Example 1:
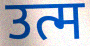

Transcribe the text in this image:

उत्म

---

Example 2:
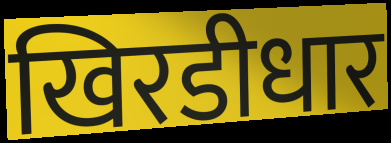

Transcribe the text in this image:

खिरडीधार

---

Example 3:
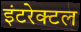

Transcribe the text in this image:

इंटरेक्टल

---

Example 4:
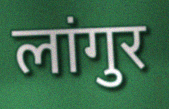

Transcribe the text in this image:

लांगुर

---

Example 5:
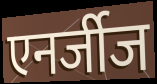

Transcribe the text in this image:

एनर्जीज